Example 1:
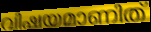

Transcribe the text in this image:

വിഷയമാണിത്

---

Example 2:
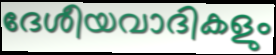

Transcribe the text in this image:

ദേശീയവാദികളും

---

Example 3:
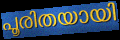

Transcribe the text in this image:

പൂരിതയായി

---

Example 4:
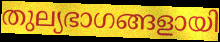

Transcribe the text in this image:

തുല്യഭാഗങ്ങളായി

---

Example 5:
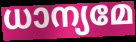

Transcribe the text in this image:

ധാന്യമേ